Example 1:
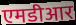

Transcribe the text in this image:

एमडीआर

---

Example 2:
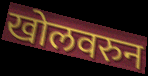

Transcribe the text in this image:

खोलवरुन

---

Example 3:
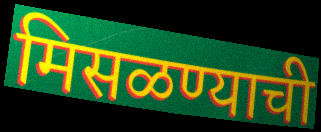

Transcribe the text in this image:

मिसळण्याची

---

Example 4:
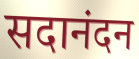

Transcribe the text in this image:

सदानंदन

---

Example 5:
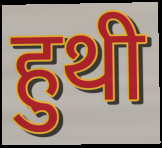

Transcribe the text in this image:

हुथी